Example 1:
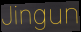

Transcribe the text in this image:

Jingun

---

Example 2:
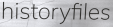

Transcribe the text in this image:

historyfiles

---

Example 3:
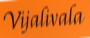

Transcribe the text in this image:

Vijalivala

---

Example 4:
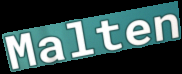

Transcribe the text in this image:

Malten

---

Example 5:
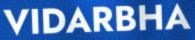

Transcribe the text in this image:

VIDARBHA